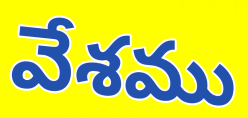
వేశము